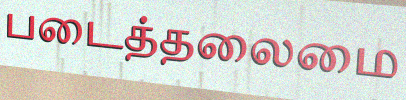
படைத்தலைமை